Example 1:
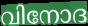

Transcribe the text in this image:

വിനോദ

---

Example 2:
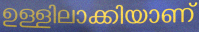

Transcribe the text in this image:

ഉള്ളിലാക്കിയാണ്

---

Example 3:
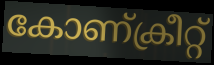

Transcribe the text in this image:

കോണ്ക്രീറ്റ്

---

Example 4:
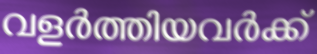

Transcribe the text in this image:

വളർത്തിയവർക്ക്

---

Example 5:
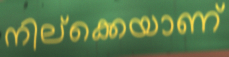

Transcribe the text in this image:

നില്ക്കെയാണ്